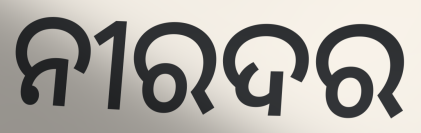
ନୀରଦର